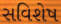
સવિશેષ